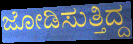
ಜೋಡಿಸುತ್ತಿದ್ದ